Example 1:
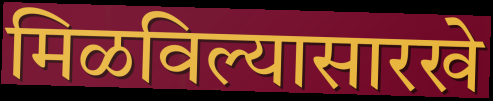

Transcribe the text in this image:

मिळविल्यासारखे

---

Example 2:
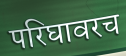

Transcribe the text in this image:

परिघावरच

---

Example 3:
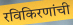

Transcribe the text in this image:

रविकिरणांची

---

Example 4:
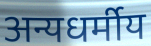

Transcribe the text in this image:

अन्यधर्मीय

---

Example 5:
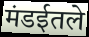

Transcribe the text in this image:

मंडईतले